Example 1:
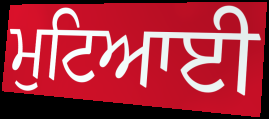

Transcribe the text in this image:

ਮੁਟਿਆਈ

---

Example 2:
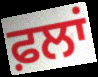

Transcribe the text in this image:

ਫ਼ਲਾਂ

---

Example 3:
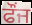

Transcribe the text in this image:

ਫੌਂਜ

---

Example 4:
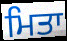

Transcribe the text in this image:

ਮਿਤਾ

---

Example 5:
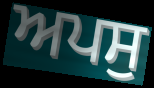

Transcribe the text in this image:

ਅਪਸੁ